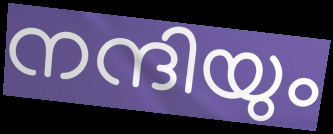
നന്ദിയും